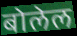
बोलेल